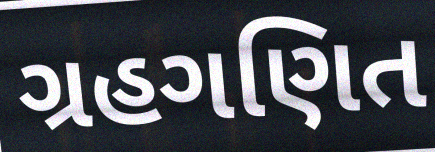
ગ્રહગણિત